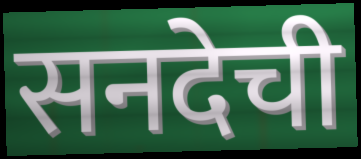
सनदेची